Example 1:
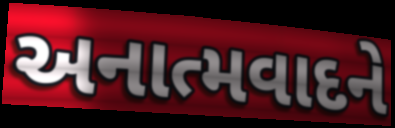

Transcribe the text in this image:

અનાત્મવાદને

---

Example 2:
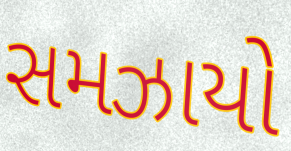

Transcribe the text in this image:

સમઝાયો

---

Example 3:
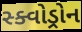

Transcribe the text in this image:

સ્ક્વોડ્રોન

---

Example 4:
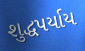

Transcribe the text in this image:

શુદ્ધપર્યાય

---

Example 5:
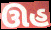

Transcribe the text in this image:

ઊહ